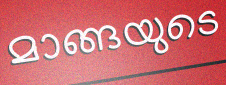
മാങ്ങയുടെ